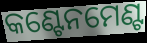
କଣ୍ଟେନମେଣ୍ଟ